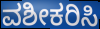
ವಶೀಕರಿಸಿ